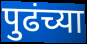
पुढंच्या